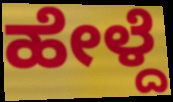
ಹೇಳ್ದೆ